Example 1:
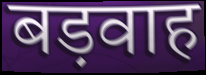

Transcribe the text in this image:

बड़वाह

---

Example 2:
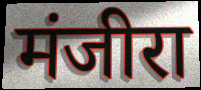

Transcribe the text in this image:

मंजीरा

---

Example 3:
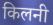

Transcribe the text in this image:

किलनी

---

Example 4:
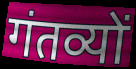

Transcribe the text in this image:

गंतव्यों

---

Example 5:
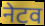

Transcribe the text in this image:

नेटव